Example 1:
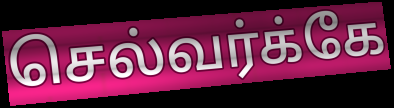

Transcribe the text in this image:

செல்வர்க்கே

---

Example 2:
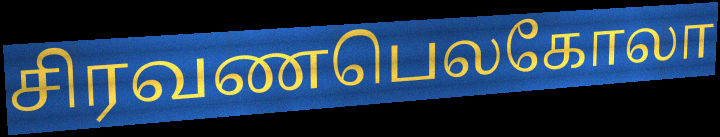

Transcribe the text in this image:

சிரவணபெலகோலா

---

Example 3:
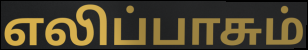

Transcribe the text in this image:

எலிப்பாசும்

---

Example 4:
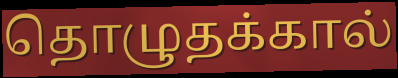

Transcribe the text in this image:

தொழுதக்கால்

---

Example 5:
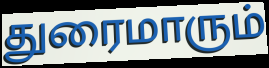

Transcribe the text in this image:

துரைமாரும்